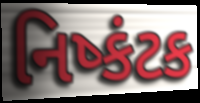
નિષ્કંટક